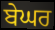
ਬੇਘਰ